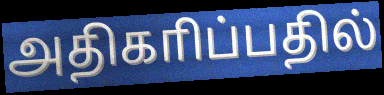
அதிகரிப்பதில்